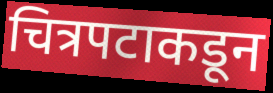
चित्रपटाकडून